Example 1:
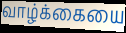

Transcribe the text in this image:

வாழ்க்கையை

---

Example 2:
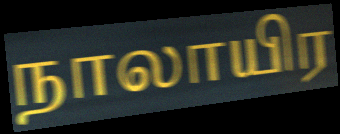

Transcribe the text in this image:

நாலாயிர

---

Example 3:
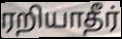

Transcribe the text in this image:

ரறியாதீர்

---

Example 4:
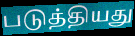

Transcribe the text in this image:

படுத்தியது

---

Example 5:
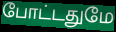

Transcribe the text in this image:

போட்டதுமே